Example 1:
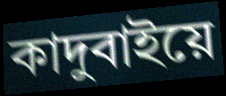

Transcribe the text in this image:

কাদুবাইয়ে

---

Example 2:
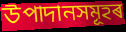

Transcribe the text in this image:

উপাদানসমূহৰ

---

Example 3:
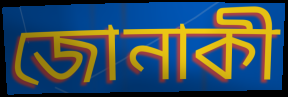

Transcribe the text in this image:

জোনাকী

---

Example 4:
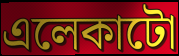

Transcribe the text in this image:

এলেকাটো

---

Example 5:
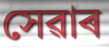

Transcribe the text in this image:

সেৱাৰ